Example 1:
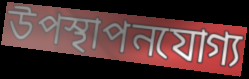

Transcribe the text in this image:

উপস্থাপনযোগ্য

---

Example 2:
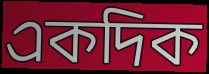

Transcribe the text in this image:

একদিক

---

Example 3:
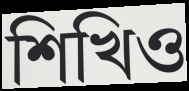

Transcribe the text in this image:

শিখিও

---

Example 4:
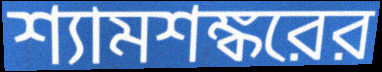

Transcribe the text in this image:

শ্যামশঙ্করের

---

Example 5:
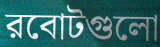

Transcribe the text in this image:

রবোটগুলো